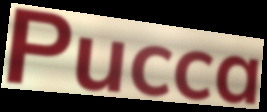
Pucca